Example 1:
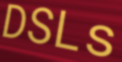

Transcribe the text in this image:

DSLs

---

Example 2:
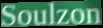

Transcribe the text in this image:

Soulzon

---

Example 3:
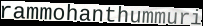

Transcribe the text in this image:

rammohanthummuri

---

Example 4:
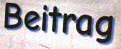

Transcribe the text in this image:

Beitrag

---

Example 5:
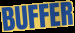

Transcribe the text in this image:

BUFFER